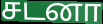
சடனா